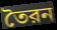
তৈরন